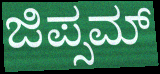
ಜಿಪ್ಸಮ್